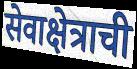
सेवाक्षेत्राची